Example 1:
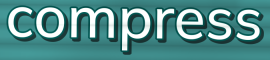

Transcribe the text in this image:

compress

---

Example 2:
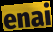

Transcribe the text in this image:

enai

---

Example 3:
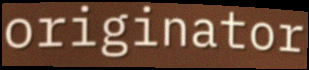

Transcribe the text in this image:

originator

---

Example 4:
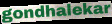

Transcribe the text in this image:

gondhalekar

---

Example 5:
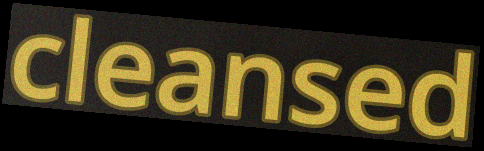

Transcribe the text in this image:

cleansed